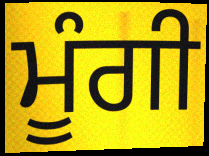
ਮੂੰਗੀ